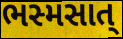
ભસ્મસાત્